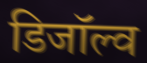
डिजॉल्व